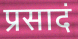
प्रसादं